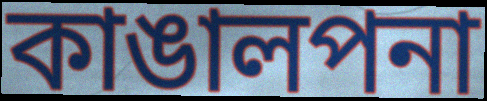
কাঙালপনা